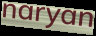
naryan